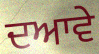
ਦਆਵੇ